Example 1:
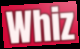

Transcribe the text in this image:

Whiz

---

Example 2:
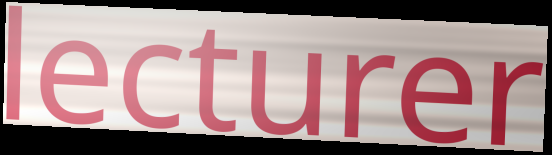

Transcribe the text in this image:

lecturer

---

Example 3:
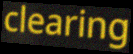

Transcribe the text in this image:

clearing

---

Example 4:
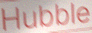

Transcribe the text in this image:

Hubble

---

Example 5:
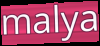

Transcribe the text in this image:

malya